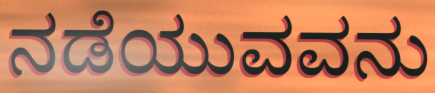
ನಡೆಯುವವನು